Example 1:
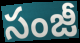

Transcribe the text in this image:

సంజీ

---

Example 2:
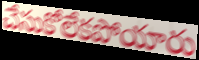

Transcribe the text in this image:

చేసుకోలేకపోయారు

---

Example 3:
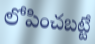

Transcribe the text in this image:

లోపించబట్టే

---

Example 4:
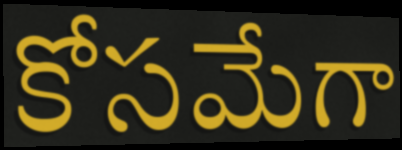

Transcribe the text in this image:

కోసమేగా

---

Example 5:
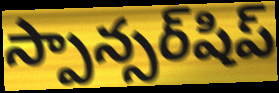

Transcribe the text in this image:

స్పాన్సర్‌షిప్